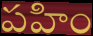
పహిం